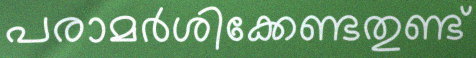
പരാമർശിക്കേണ്ടതുണ്ട്